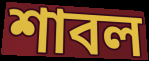
শাবল